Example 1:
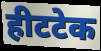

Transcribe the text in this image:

हीटटेक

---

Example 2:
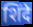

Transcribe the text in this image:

शिंदे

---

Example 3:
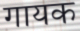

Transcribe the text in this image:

गायक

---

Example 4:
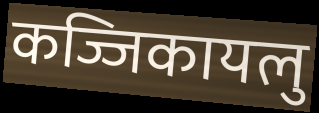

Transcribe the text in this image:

कज्जिकायलु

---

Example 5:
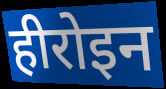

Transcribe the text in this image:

हीरोइन